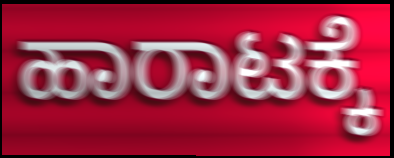
ಹಾರಾಟಕ್ಕೆ